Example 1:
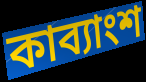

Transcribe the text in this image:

কাব্যাংশ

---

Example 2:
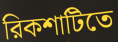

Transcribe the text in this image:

রিকশাটিতে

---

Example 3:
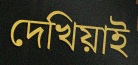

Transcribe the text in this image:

দেখিয়াই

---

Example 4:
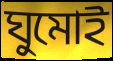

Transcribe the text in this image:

ঘুমোই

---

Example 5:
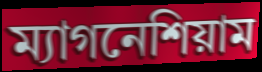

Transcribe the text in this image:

ম্যাগনেশিয়াম